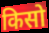
किसो